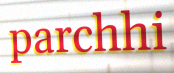
parchhi